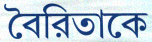
বৈরিতাকে